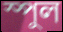
স্পুল